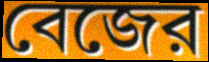
বেজের